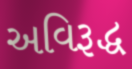
અવિરૂદ્ધ